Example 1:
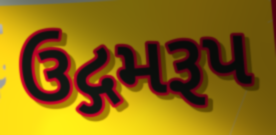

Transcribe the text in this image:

ઉદ્ગમરૂપ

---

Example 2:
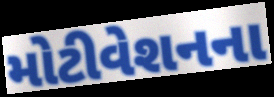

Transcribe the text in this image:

મોટીવેશનના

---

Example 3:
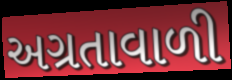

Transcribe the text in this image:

અગ્રતાવાળી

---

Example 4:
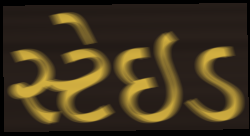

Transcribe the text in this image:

સ્ટેઇડ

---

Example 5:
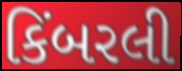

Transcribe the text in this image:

કિંબરલી